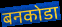
बनकोडा